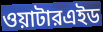
ওয়াটারএইড